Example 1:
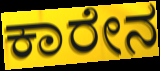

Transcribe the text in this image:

ಕಾರೇನ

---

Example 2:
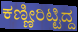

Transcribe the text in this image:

ಕಣ್ಣೀರಿಟ್ಟಿದ್ದ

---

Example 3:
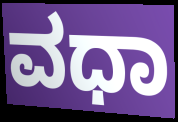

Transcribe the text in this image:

ವಧಾ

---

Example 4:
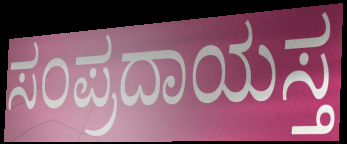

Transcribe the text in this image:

ಸಂಪ್ರದಾಯಸ್ತ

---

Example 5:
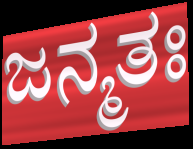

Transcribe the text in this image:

ಜನ್ಮತಃ